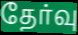
தேர்வு